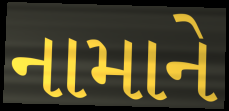
નામાને